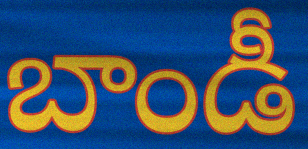
బాండీ